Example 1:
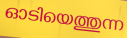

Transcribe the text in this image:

ഓടിയെത്തുന്ന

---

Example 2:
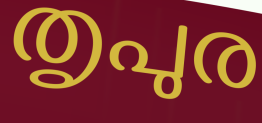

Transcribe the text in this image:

തൃപുര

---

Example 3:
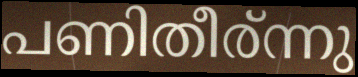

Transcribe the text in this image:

പണിതീര്ന്നു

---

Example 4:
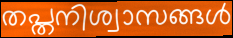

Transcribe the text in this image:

തപ്തനിശ്വാസങ്ങൾ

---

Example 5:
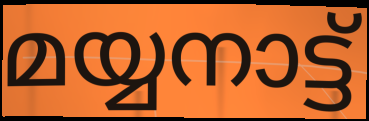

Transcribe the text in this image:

മയ്യനാട്ട്